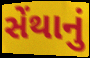
સેંથાનું